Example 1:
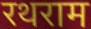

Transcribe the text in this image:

रथराम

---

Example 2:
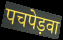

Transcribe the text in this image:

पचपेड़वा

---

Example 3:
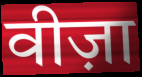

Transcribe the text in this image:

वीज़ा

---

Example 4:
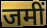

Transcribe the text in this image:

जमीं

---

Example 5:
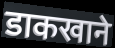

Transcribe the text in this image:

डाकखाने